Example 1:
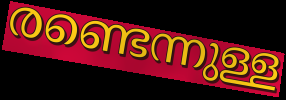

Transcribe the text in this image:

രണ്ടെന്നുള്ള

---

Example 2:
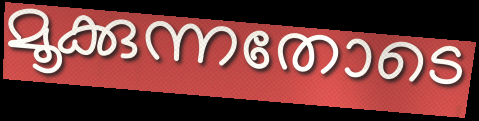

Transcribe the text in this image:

മൂക്കുന്നതോടെ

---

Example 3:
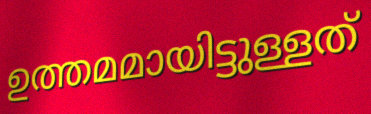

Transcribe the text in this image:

ഉത്തമമായിട്ടുള്ളത്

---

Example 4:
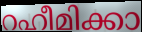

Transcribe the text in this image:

റഹീമിക്കാ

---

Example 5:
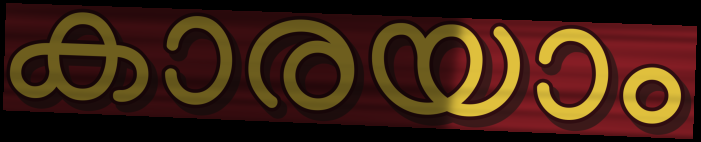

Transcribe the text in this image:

കാരയാം